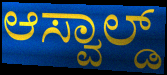
ಆಸ್ವಾಲ್ಡ್